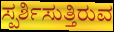
ಸ್ಪರ್ಶಿಸುತ್ತಿರುವ